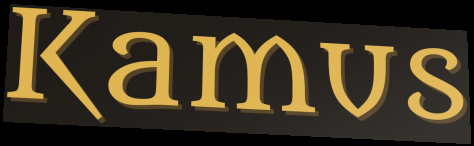
Kamus